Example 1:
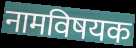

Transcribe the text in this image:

नामविषयक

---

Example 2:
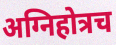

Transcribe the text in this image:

अग्निहोत्रच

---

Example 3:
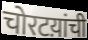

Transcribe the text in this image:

चोरटय़ांची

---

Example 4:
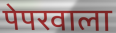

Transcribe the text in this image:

पेपरवाला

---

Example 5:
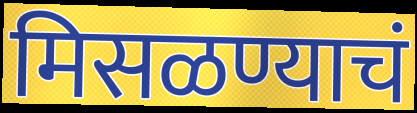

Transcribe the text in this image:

मिसळण्याचं